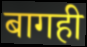
बागही